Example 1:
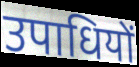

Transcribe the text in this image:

उपाधियों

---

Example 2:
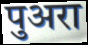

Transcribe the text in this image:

पुअरा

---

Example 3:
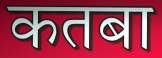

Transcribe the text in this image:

कतबा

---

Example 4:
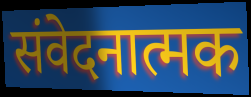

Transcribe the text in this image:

संवेदनात्मक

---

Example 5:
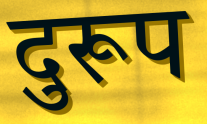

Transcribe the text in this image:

दुरूप